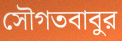
সৌগতবাবুর